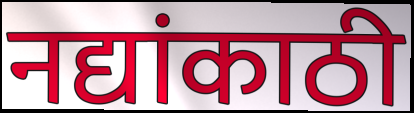
नद्यांकाठी